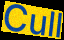
Cull